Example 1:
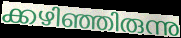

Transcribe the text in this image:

ക്കഴിഞ്ഞിരുന്നു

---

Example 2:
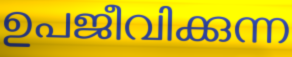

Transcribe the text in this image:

ഉപജീവിക്കുന്ന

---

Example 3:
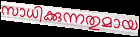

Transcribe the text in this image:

സാധിക്കുന്നതുമായ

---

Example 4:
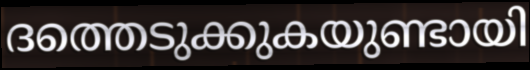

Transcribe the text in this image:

ദത്തെടുക്കുകയുണ്ടായി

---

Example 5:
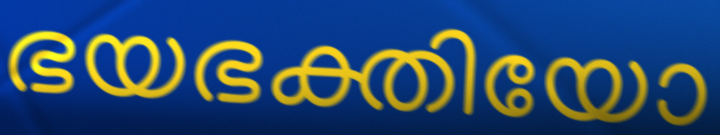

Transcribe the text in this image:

ഭയഭക്തിയോ